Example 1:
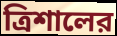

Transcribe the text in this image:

ত্রিশালের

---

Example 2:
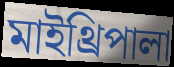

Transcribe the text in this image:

মাইথ্রিপালা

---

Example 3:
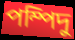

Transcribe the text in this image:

পম্পিদু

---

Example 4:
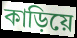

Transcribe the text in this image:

কাড়িয়ে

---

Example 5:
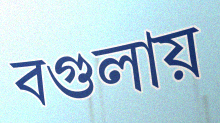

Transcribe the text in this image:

বগুলায়